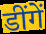
डींगें